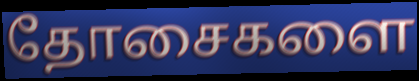
தோசைகளை